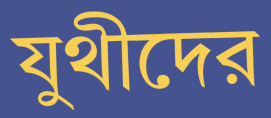
যুথীদের